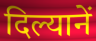
दिल्यानें